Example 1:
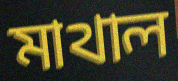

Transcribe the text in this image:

মাথাল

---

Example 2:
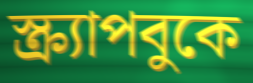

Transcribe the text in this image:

স্ক্র্যাপবুকে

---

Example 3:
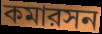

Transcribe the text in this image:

কমারসন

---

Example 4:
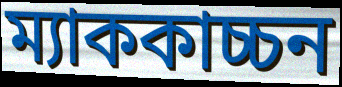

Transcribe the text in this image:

ম্যাককাচ্চন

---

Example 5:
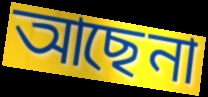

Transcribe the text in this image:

আছেনা